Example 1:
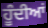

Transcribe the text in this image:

ਹੂੰਦੀਆਂ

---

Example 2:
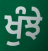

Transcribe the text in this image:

ਖੁੰਝੇ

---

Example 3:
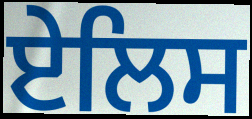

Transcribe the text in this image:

ਏਲਿਸ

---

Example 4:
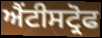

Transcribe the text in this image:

ਐਂਟੀਸਟ੍ਰੋਫ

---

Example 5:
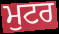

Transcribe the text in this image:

ਮੁਟਰ